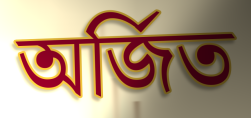
অর্জিত